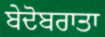
ਬੇਦੋਬਰਾਤਾ